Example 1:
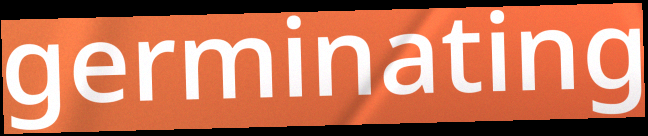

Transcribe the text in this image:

germinating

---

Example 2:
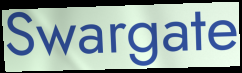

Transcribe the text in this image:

Swargate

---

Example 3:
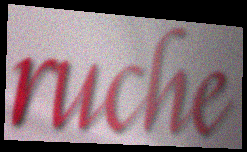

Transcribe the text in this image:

ruche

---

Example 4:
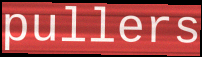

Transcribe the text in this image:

pullers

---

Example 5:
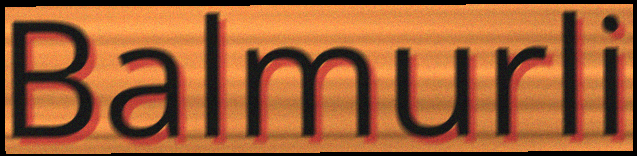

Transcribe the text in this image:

Balmurli